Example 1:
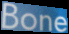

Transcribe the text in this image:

Bone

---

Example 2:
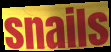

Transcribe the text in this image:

snails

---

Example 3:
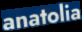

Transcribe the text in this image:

anatolia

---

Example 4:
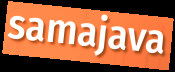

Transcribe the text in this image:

samajava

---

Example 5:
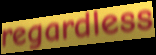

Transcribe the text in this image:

regardless